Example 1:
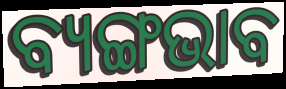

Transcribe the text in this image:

ବ୍ୟଙ୍ଗଭାବ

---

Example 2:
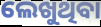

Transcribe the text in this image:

ଲେଖୁଥିବା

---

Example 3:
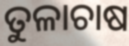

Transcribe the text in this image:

ତୁଳାଚାଷ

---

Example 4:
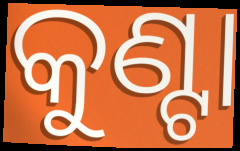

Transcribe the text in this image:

କୁଣ୍ଟା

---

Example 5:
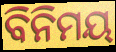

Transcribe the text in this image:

ବିନିମୟ